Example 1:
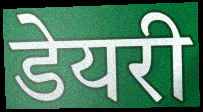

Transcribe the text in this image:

डेयरी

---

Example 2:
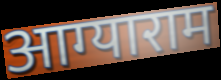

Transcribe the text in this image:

आग्याराम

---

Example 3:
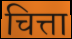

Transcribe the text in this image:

चित्ता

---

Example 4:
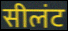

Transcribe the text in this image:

सीलंट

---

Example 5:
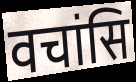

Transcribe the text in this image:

वचांसि